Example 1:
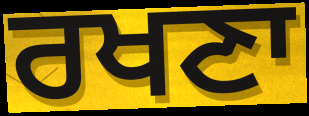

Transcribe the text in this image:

ਰਖਣਾ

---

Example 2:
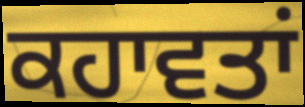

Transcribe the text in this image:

ਕਹਾਵਤਾਂ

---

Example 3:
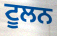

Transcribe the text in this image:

ਟੂਲਨ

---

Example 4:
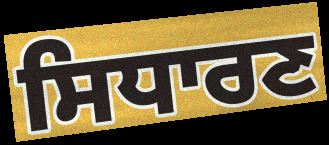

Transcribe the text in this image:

ਸਿਧਾਰਣ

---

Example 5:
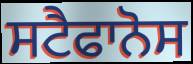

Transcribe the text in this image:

ਸਟੈਫਾਨੋਸ